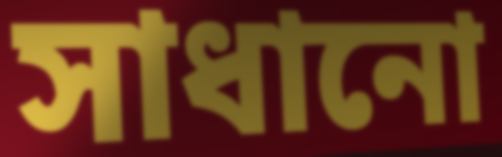
সাধানো